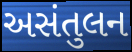
અસંતુલન